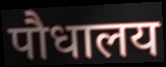
पौधालय